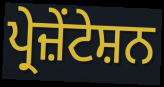
ਪ੍ਰੇਜ਼ੇਂਟੇਸ਼ਨ